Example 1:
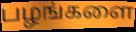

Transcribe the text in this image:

பழங்களை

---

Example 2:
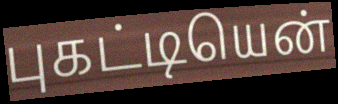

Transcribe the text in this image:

புகட்டியென்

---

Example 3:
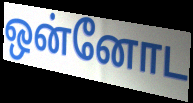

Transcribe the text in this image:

ஒன்னோட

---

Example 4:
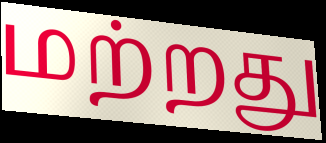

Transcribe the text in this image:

மற்றது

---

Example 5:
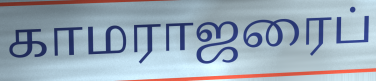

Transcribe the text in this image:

காமராஜரைப்